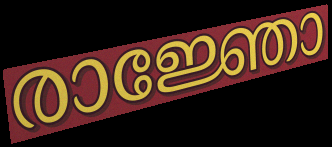
രാജ്ഞോ